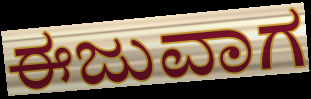
ಈಜುವಾಗ